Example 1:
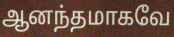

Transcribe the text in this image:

ஆனந்தமாகவே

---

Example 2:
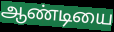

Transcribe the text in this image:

ஆண்டியை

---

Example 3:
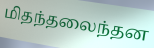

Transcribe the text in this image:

மிதந்தலைந்தன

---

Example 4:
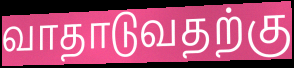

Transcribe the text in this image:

வாதாடுவதற்கு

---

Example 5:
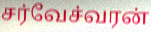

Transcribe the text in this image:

சர்வேச்வரன்